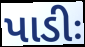
પાડીઃ